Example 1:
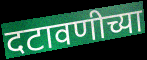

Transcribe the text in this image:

दटावणीच्या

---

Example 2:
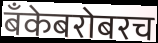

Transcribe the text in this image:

बँकेबरोबरच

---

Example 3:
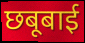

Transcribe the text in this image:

छबूबाई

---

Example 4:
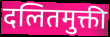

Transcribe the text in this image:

दलितमुक्ती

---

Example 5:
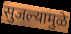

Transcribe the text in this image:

सुजल्यामुळे